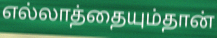
எல்லாத்தையும்தான்